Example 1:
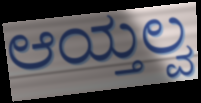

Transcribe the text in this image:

ಆಯ್ತಲ್ವ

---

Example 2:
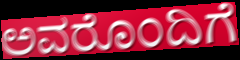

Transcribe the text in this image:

ಅವರೊಂದಿಗೆ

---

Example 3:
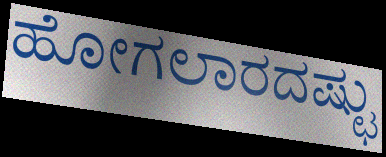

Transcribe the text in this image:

ಹೋಗಲಾರದಷ್ಟು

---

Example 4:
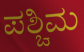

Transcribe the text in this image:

ಪಶ್ಚಿಮ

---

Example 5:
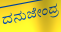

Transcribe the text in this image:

ದನುಜೇಂದ್ರ